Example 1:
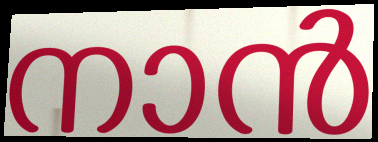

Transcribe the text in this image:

നാൻ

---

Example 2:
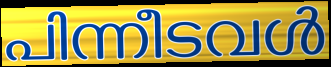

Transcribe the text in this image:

പിന്നീടവൾ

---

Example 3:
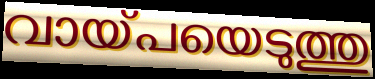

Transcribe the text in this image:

വായ്പയെടുത്തു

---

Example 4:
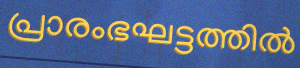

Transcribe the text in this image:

പ്രാരംഭഘട്ടത്തിൽ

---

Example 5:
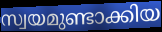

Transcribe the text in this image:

സ്വയമുണ്ടാക്കിയ